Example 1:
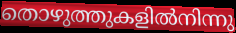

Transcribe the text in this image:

തൊഴുത്തുകളിൽനിന്നു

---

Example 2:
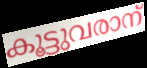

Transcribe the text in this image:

കൂട്ടുവരാന്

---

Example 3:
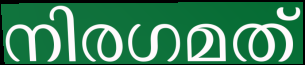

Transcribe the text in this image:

നിരഗമത്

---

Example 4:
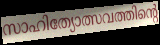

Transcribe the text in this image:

സാഹിത്യോത്സവത്തിന്റെ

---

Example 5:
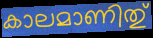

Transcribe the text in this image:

കാലമാണിതു്